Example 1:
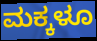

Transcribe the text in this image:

ಮಕ್ಕಳೂ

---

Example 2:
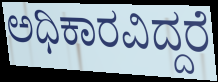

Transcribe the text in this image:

ಅಧಿಕಾರವಿದ್ದರೆ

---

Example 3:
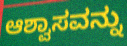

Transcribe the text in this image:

ಆಶ್ವಾಸವನ್ನು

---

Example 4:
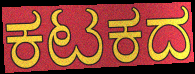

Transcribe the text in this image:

ಕಟಕದ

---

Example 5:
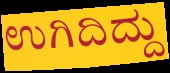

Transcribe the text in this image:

ಉಗಿದಿದ್ದು